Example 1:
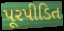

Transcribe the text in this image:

પૂરપીડિત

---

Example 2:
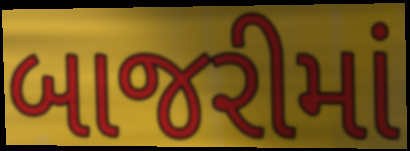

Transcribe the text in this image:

બાજરીમાં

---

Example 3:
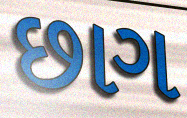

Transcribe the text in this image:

છાગ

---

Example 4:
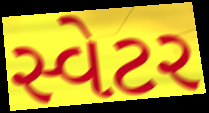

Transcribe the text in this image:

સ્વેટર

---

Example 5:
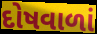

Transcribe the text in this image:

દોષવાળાં